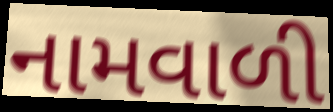
નામવાળી